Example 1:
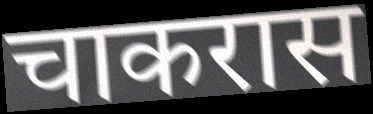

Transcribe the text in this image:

चाकरास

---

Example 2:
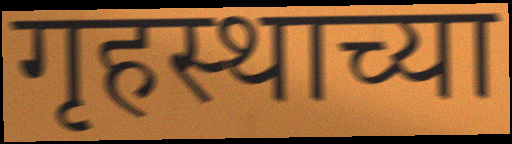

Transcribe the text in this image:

गृहस्थाच्या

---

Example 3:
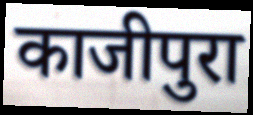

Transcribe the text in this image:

काजीपुरा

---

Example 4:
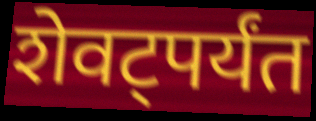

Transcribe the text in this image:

शेवट्पर्यंत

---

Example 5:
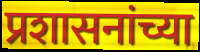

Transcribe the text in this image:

प्रशासनांच्या